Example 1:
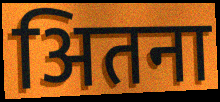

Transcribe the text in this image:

अितना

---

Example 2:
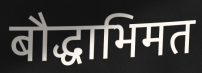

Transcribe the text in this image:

बौद्धाभिमत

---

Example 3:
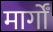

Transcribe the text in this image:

मार्गोँ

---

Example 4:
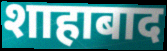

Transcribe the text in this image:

शाहाबाद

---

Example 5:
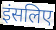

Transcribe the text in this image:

इंसलिए